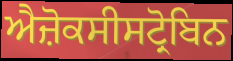
ਐਜ਼ੋਕਸੀਸਟ੍ਰੋਬਿਨ